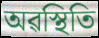
অৱস্থিতি